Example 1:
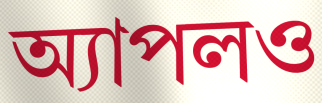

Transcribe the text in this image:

অ্যাপলও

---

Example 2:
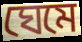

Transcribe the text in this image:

ঘেমে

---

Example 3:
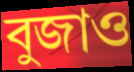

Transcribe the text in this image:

বুজাও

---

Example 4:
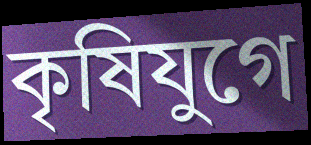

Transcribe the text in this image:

কৃষিযুগে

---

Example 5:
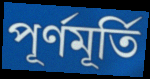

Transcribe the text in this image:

পূর্ণমূর্তি